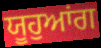
ਯੂਹੁਆਂਗ